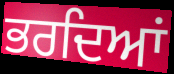
ਭਰਦਿਆਂ